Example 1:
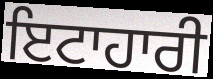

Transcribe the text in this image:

ਇਟਾਹਾਰੀ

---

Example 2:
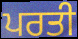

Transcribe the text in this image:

ਪਰਤੀ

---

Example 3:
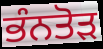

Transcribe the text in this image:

ਭੰਨਤੋੜ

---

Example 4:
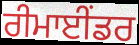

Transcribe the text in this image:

ਰੀਮਾਈਂਡਰ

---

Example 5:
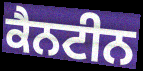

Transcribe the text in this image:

ਕੈਨਟੀਨ